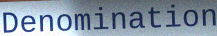
Denomination